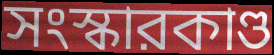
সংস্কারকাণ্ড